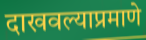
दाखवल्याप्रमाणे